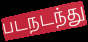
படநடந்து